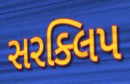
સરક્લિપ